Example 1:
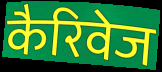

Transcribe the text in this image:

कैरिवेज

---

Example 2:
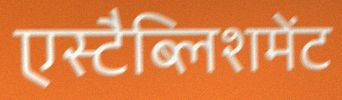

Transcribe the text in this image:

एस्टैब्लिशमेंट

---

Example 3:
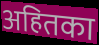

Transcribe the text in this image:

अहितका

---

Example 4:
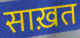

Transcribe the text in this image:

साख़त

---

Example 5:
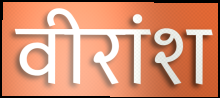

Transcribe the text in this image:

वीरांश